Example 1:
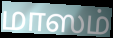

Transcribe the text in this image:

மாஸம்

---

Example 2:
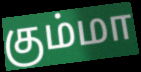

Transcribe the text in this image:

கும்மா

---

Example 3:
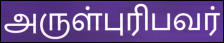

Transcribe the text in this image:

அருள்புரிபவர்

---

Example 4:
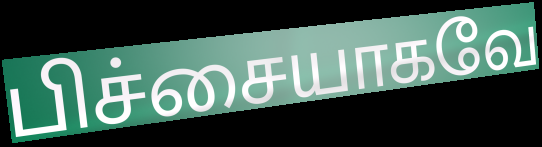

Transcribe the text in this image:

பிச்சையாகவே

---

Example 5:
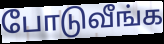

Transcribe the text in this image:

போடுவீங்க